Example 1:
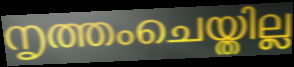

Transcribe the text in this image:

നൃത്തംചെയ്തില്ല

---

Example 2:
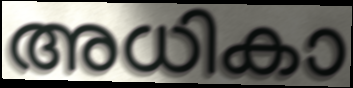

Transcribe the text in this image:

അധികാ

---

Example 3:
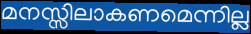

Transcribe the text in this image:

മനസ്സിലാകണമെന്നില്ല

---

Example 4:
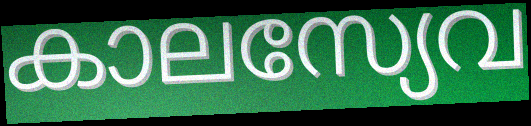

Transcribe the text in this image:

കാലസ്യേവ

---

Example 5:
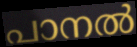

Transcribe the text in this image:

പാനൽ